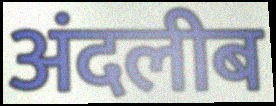
अंदलीब